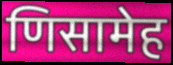
णिसामेह